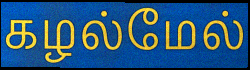
கழல்மேல்